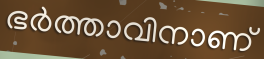
ഭർത്താവിനാണ്